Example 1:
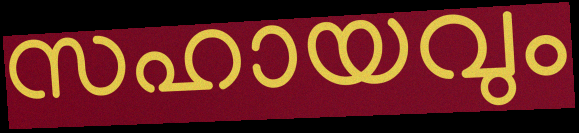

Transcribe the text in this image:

സഹായവും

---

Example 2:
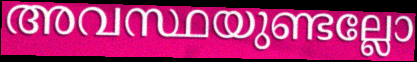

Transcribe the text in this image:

അവസ്ഥയുണ്ടല്ലോ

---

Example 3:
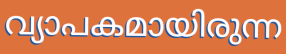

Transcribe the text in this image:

വ്യാപകമായിരുന്ന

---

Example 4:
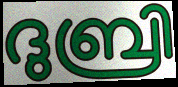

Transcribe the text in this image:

ദുബ്രി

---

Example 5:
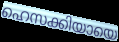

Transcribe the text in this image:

ഹെസക്കിയായെ